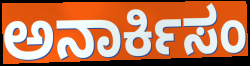
ಅನಾರ್ಕಿಸಂ